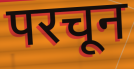
परचून